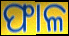
ଫାଳ